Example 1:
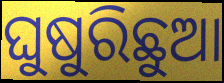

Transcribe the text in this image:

ଘୁଷୁରିଛୁଆ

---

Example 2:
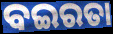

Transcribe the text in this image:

ବଇରତା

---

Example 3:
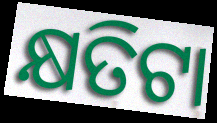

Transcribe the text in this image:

କ୍ଷତିଟା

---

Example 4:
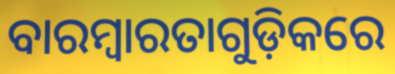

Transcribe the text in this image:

ବାରମ୍ବାରତାଗୁଡ଼ିକରେ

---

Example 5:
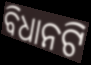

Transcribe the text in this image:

ବିଧାନଟି